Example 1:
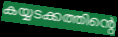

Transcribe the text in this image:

കയ്യടക്കത്തിന്റെ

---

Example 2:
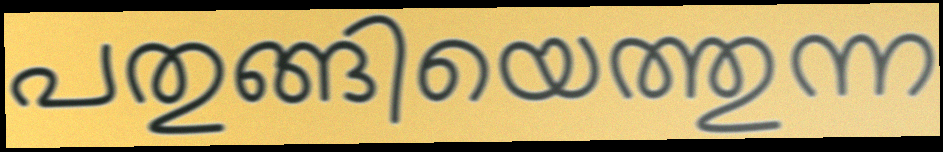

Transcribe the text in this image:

പതുങ്ങിയെത്തുന്ന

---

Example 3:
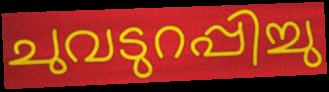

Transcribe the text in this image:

ചുവടുറപ്പിച്ചു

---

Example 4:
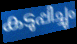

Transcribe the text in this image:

കടുപ്പിച്ചും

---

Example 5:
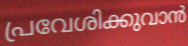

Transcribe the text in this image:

പ്രവേശിക്കുവാൻ